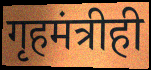
गृहमंत्रीही